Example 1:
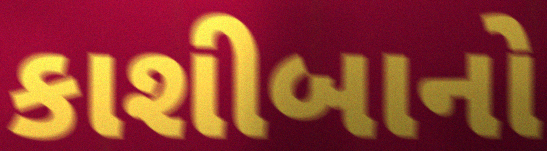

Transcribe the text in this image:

કાશીબાનો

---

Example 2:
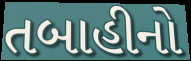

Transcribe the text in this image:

તબાહીનો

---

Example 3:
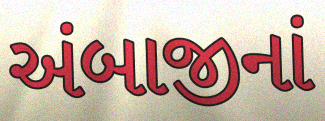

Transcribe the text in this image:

અંબાજીનાં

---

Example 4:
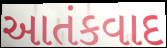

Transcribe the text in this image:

આતંકવાદ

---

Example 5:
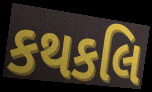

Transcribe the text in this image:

કથકલિ